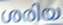
ശരിയ